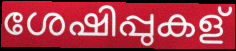
ശേഷിപ്പുകള്